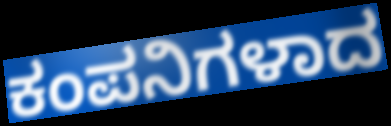
ಕಂಪನಿಗಳಾದ